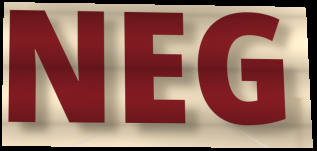
NEG